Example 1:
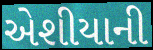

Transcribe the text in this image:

એશીયાની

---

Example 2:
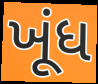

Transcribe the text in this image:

ખૂંધ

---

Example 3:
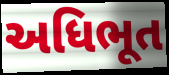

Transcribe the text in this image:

અધિભૂત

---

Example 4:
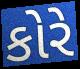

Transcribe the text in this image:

કોરે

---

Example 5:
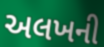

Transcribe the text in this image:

અલખની